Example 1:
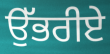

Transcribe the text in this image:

ਉੱਭਰੀਏ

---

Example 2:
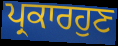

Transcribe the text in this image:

ਪ੍ਰਕਾਰਹੁਣ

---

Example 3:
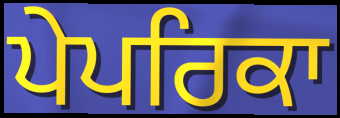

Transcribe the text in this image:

ਪੇਪਰਿਕਾ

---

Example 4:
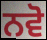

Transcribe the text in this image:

ਨਵੋ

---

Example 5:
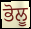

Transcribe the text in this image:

ਭੋਲੂ